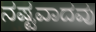
ನಷ್ಟವಾದವು